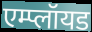
एम्प्लॉयड